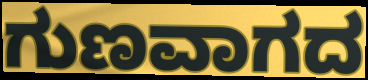
ಗುಣವಾಗದ